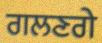
ਗਲਣਗੇ